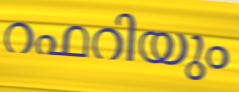
റഫറിയും